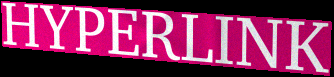
HYPERLINK